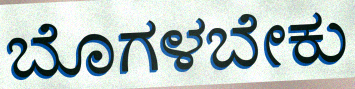
ಬೊಗಳಬೇಕು